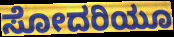
ಸೋದರಿಯೂ